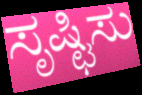
ಸೃಷ್ಟಿಸು